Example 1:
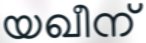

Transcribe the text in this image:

യഖീന്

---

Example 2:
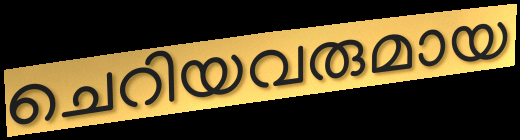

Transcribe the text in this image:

ചെറിയവരുമായ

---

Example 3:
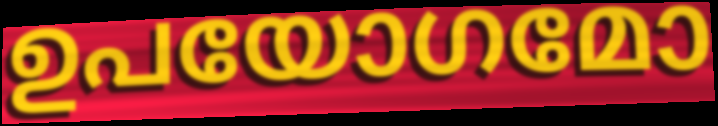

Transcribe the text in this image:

ഉപയോഗമോ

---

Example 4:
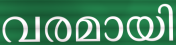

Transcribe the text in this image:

വരമായി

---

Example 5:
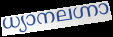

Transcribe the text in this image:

ധ്യാനലഗ്നാ